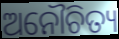
ଅନୌଚିତ୍ୟ